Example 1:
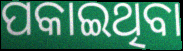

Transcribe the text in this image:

ପକାଇଥିବା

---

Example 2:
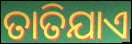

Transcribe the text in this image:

ତାତିଯାଏ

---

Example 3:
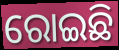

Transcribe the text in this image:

ରୋଇଛି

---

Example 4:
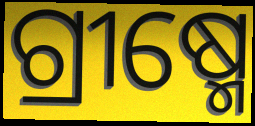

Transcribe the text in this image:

ଗ୍ରୀଷ୍ମେ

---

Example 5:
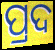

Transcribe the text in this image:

ପ୍ରଦ